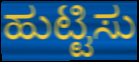
ಹುಟ್ಟಿಸು